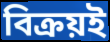
বিক্রয়ই